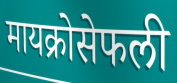
मायक्रोसेफली